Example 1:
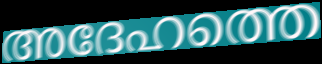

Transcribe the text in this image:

അദേഹത്തെ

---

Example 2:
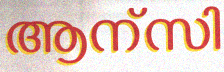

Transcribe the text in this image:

ആന്സി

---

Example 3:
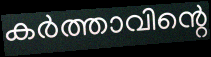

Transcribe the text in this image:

കർത്താവിന്റെ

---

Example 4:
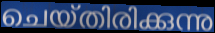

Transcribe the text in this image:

ചെയ്‌തിരിക്കുന്നു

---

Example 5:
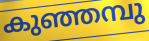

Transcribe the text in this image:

കുഞ്ഞമ്പു